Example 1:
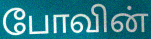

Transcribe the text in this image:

போவின்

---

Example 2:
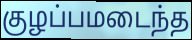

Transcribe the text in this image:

குழப்பமடைந்த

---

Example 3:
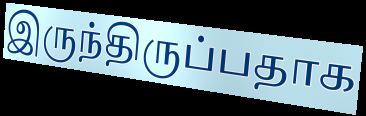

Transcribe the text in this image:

இருந்திருப்பதாக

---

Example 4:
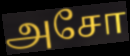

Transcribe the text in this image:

அசோ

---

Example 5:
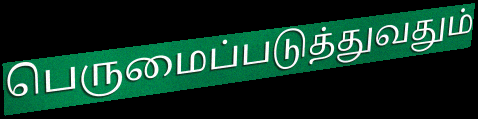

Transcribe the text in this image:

பெருமைப்படுத்துவதும்